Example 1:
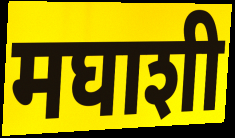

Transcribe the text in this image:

मघाशी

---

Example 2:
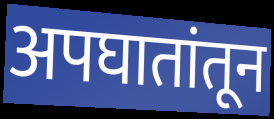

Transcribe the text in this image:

अपघातांतून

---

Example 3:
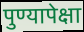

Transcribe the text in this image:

पुण्यापेक्षा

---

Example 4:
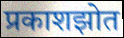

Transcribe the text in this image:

प्रकाशझोत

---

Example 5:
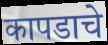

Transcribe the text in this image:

कापडाचे